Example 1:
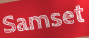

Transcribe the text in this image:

Samset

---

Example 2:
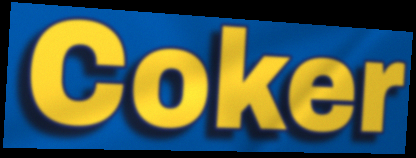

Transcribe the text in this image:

Coker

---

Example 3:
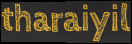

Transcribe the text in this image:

tharaiyil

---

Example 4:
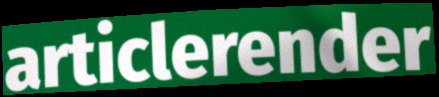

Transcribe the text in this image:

articlerender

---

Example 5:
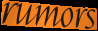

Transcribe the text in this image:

rumors